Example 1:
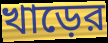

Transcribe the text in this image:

খাড়ের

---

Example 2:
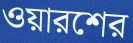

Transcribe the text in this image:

ওয়ারশের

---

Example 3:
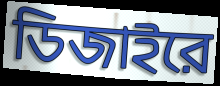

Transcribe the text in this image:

ডিজাইরে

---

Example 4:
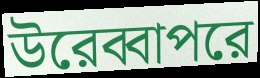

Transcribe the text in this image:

উরেব্বাপরে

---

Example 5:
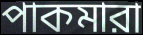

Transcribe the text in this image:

পাকমারা